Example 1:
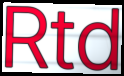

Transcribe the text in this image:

Rtd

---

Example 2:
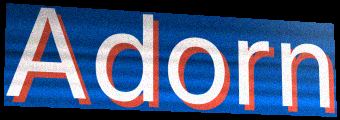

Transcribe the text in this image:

Adorn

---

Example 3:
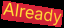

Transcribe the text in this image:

Already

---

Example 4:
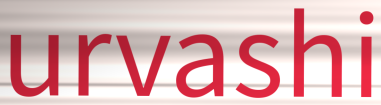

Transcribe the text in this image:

urvashi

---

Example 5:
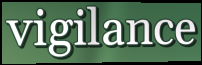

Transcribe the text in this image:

vigilance